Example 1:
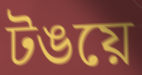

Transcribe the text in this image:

টঙয়ে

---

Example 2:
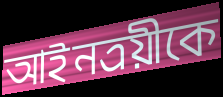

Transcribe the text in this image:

আইনত্রয়ীকে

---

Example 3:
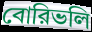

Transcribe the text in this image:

বোরিভলি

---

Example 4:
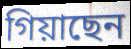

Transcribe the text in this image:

গিয়াছেন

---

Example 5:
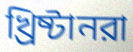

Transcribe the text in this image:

খ্রিষ্টানরা